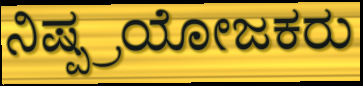
ನಿಷ್ಪ್ರಯೋಜಕರು